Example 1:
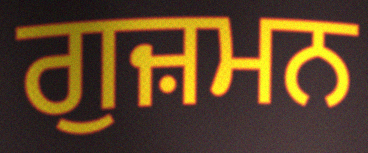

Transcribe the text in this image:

ਗੁਜ਼ਮਨ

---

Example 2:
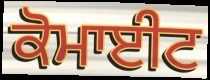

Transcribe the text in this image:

ਕੋਮਾਈਟ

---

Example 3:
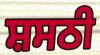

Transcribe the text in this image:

ਸ਼ਸਠੀ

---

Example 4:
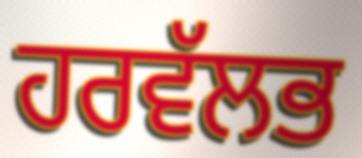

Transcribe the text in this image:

ਹਰਵੱਲਭ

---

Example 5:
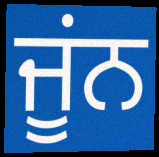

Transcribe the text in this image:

ਜੂਂਨ